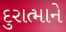
દુરાત્માને